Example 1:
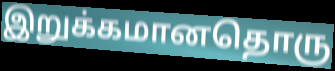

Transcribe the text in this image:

இறுக்கமானதொரு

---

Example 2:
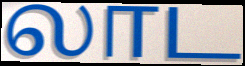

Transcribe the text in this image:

லாட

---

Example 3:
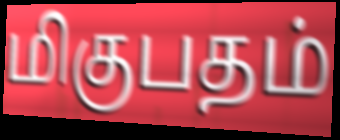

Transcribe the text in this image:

மிகுபதம்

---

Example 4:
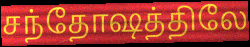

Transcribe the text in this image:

சந்தோஷத்திலே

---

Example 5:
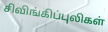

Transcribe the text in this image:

சிவிங்கிப்புலிகள்